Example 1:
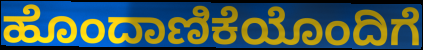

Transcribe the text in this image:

ಹೊಂದಾಣಿಕೆಯೊಂದಿಗೆ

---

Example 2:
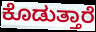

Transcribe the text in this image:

ಕೊಡುತ್ತಾರೆ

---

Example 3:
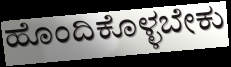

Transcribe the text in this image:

ಹೊಂದಿಕೊಳ್ಳಬೇಕು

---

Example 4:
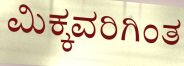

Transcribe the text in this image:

ಮಿಕ್ಕವರಿಗಿಂತ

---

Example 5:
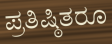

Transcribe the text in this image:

ಪ್ರತಿಷ್ಠಿತರೂ